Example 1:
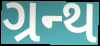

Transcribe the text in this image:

ગ્રન્થ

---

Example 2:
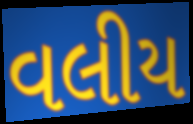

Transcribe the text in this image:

વલીય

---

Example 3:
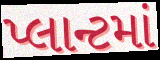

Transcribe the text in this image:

પ્લાન્ટમાં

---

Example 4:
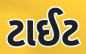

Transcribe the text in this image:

ટાઈટ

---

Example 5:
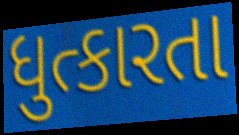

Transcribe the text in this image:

ધુત્કારતા